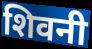
शिवनी